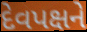
દેવપક્ષને